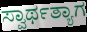
ಸ್ವಾರ್ಥತ್ಯಾಗ